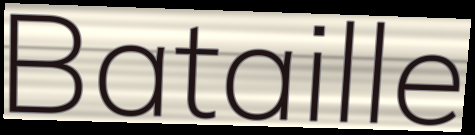
Bataille